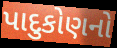
પાદુકોણનો